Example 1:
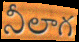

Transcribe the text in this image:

నీలాగ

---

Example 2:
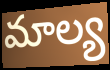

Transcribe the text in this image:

మాల్య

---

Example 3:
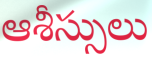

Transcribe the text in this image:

ఆశీస్సులు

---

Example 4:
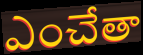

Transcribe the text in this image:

ఎంచేతా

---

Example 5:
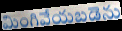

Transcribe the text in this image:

మింగివేయబడెను